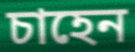
চাহেন